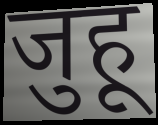
जुहू